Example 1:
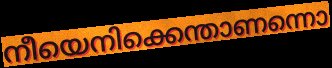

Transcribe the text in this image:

നീയെനിക്കെന്താണന്നൊ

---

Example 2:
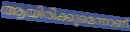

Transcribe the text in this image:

ആയിരിക്കുമെന്നാണ്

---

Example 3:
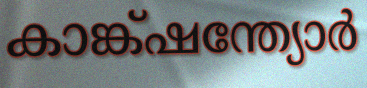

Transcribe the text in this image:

കാങ്ക്ഷന്ത്യോർ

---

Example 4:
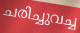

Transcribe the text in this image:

ചരിച്ചുവച്ച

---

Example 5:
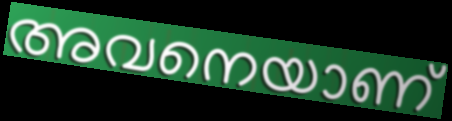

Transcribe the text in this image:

അവനെയാണ്